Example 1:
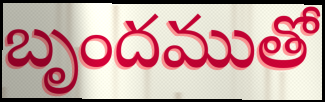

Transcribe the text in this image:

బృందముతో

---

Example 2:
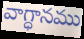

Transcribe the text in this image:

వాగ్ధానము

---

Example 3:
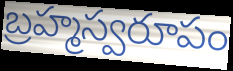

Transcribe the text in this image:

బ్రహ్మస్వరూపం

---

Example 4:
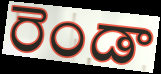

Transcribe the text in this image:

రెండా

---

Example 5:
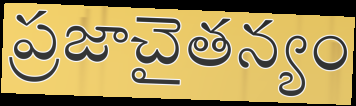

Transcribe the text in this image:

ప్రజాచైతన్యం